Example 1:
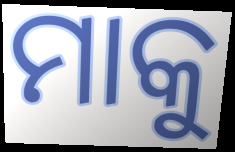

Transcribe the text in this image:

ମାକୁ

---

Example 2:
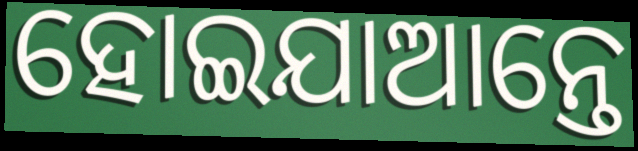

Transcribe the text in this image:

ହୋଇଯାଆନ୍ତେ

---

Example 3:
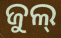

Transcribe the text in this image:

ଜୁଲ୍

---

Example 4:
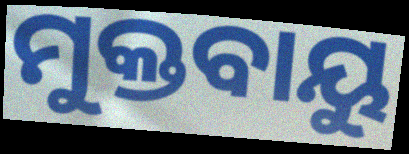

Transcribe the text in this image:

ମୁକ୍ତବାୟୁ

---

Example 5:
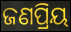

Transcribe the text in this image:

ଜଣପ୍ରିୟ